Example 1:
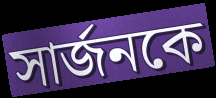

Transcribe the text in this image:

সার্জনকে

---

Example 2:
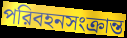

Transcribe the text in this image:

পরিবহনসংক্রান্ত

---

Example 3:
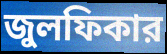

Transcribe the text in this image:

জুলফিকার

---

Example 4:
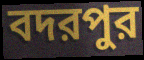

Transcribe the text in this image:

বদরপুর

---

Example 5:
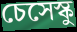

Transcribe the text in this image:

চেসেস্কু